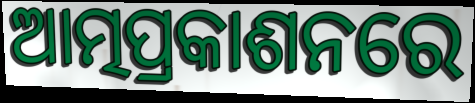
ଆତ୍ମପ୍ରକାଶନରେ